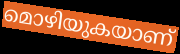
മൊഴിയുകയാണ്